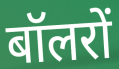
बॉलरों